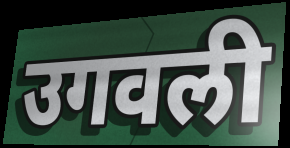
उगवली